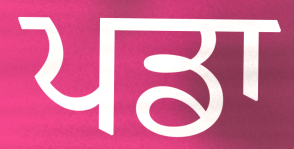
ਪਡਾ